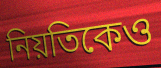
নিয়তিকেও